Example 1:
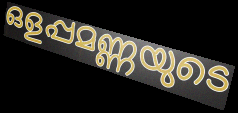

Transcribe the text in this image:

ഒളപ്പമണ്ണയുടെ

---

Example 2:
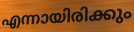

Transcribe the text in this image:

എന്നായിരിക്കും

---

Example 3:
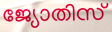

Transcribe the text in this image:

ജ്യോതിസ്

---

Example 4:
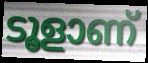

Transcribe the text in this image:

ടൂളാണ്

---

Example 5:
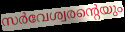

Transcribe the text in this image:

സർവേശ്വരന്റെയും